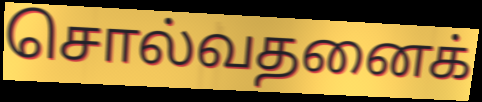
சொல்வதனைக்